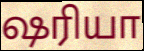
ஷரியா